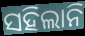
ସହିଲାନି